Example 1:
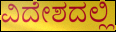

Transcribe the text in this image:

ವಿದೇಶದಲ್ಲಿ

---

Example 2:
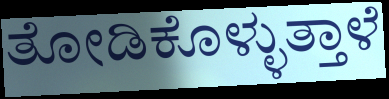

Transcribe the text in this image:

ತೋಡಿಕೊಳ್ಳುತ್ತಾಳೆ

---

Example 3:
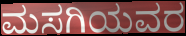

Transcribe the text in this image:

ಮಸಗಿಯವರ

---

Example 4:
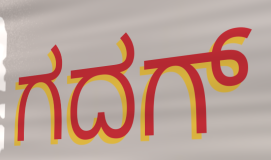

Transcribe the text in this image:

ಗದಗ್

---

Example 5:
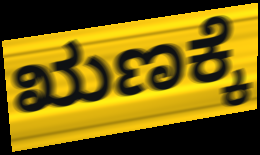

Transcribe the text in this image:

ಋಣಕ್ಕೆ